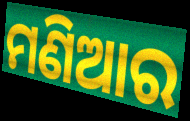
ମଣିଆର